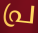
പ്ര